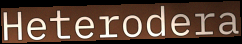
Heterodera